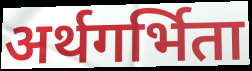
अर्थगर्भिता